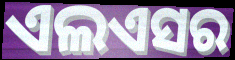
ଏଲଏସର